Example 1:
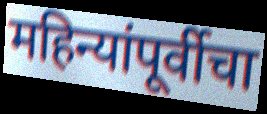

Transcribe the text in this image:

महिन्यांपूर्वीचा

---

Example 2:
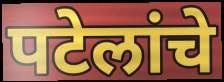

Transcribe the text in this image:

पटेलांचे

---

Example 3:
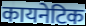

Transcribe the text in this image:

कायनेटिक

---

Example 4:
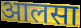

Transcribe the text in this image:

आलसा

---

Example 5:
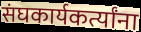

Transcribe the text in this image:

संघकार्यकर्त्यांना